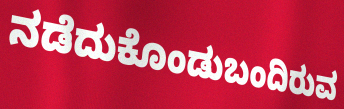
ನಡೆದುಕೊಂಡುಬಂದಿರುವ